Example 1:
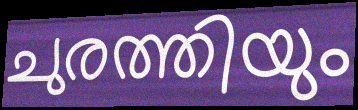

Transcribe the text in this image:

ചുരത്തിയും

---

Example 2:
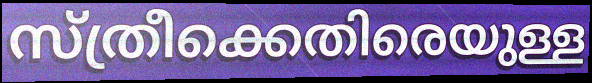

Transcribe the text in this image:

സ്ത്രീക്കെതിരെയുള്ള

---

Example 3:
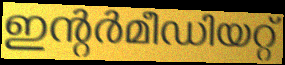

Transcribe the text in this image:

ഇന്റർമീഡിയറ്റ്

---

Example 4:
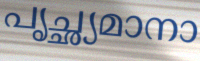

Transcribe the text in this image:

പൃച്ഛ്യമാനാ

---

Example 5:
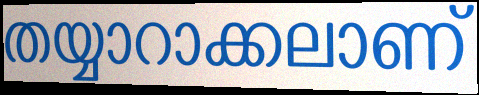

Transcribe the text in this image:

തയ്യാറാക്കലാണ്